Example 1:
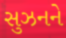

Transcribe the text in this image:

સુઝનને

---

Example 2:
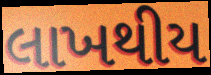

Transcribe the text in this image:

લાખથીય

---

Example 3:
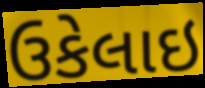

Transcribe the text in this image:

ઉકેલાઇ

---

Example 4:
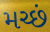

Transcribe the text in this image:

મચ્છં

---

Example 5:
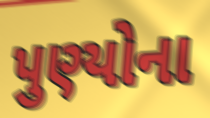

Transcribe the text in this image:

પુણ્યોના